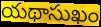
యథాసుఖం